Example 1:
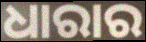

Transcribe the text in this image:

ଧାରାର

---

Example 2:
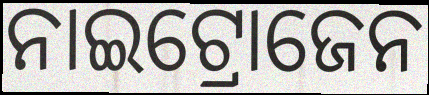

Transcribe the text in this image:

ନାଇଟ୍ରୋଜେନ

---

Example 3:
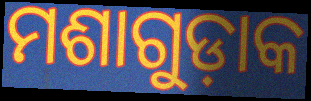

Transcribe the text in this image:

ମଶାଗୁଡ଼ାକ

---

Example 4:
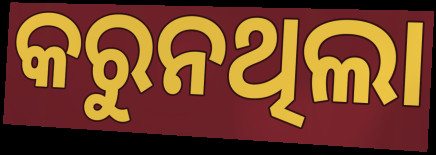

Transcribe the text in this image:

କରୁନଥିଲା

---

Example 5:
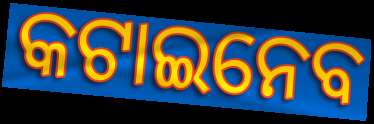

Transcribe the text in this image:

କଟାଇନେବ